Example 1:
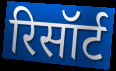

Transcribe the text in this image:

रिसॉर्ट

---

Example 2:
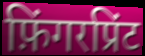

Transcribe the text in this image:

फ़िंगरप्रिंट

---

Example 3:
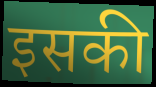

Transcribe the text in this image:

इसकी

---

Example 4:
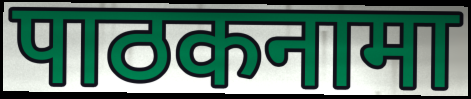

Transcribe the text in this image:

पाठकनामा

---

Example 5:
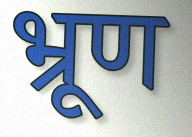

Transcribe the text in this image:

भ्रूण